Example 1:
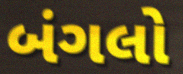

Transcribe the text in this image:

બંગલો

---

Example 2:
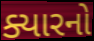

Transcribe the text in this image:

ક્યારનો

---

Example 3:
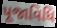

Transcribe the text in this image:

પૂજાવિધિ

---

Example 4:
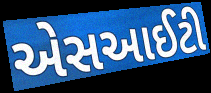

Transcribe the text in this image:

એસઆઈટી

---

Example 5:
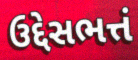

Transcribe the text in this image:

ઉદ્દેસભત્તં